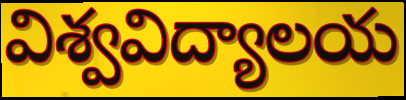
విశ్వవిద్యాలయ